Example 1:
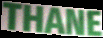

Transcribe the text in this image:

THANE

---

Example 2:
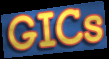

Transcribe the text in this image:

GICs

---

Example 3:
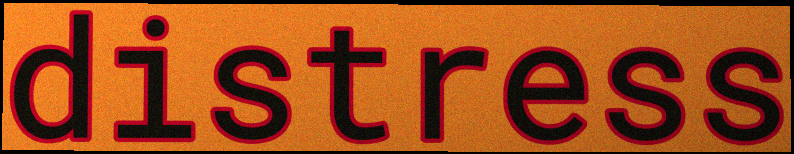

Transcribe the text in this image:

distress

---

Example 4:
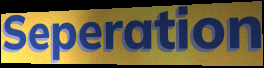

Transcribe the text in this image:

Seperation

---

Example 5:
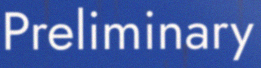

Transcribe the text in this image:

Preliminary